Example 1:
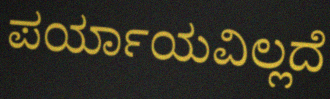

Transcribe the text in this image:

ಪರ್ಯಾಯವಿಲ್ಲದೆ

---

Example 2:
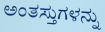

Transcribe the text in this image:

ಅಂತಸ್ತುಗಳನ್ನು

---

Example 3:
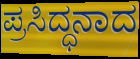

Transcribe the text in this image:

ಪ್ರಸಿದ್ಧನಾದ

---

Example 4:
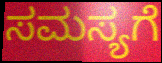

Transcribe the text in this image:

ಸಮಸ್ಯಗೆ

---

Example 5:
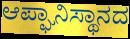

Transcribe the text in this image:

ಆಪ್ಘಾನಿಸ್ಥಾನದ